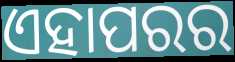
ଏହାପରର